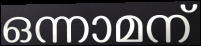
ഒന്നാമന്